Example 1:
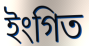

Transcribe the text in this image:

ইংগিত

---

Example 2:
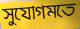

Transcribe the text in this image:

সুযোগমতে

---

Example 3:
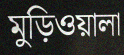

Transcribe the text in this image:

মুড়িওয়ালা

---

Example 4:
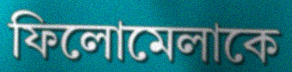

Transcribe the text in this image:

ফিলোমেলাকে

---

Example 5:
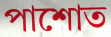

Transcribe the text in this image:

পাশোত